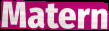
Matern